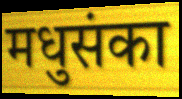
मधुसंका